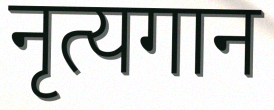
नृत्यगान